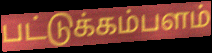
பட்டுக்கம்பளம்